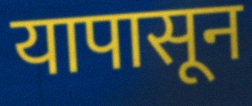
यापासून